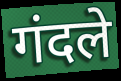
गंदले